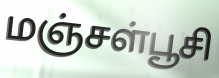
மஞ்சள்பூசி